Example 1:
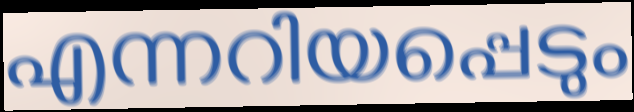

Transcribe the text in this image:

എന്നറിയപ്പെടും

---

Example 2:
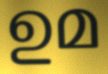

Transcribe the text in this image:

ഉമ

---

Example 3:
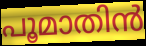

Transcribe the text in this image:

പൂമാതിൻ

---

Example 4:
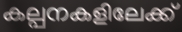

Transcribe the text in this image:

കല്പനകളിലേക്ക്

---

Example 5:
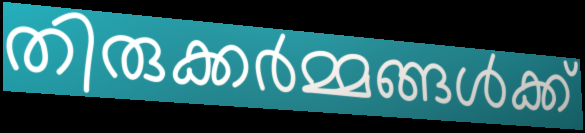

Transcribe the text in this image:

തിരുക്കർമ്മങ്ങൾക്ക്